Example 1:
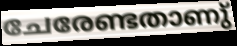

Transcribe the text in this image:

ചേരേണ്ടതാണു്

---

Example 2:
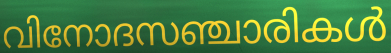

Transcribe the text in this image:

വിനോദസഞ്ചാരികൾ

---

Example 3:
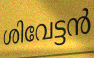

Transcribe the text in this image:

ശിവേട്ടൻ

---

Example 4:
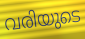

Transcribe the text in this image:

വരിയുടെ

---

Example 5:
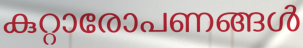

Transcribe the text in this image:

കുറ്റാരോപണങ്ങൾ